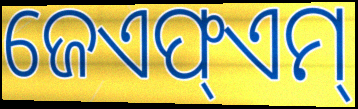
ଜେଏଫ୍ଏମ୍